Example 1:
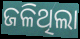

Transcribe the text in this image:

ଜଳିଥିଲା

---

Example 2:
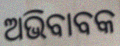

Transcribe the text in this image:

ଅଭିବାବକ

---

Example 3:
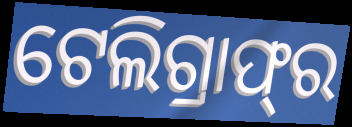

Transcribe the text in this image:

ଟେଲିଗ୍ରାଫ୍‌ର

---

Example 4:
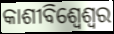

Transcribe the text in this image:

କାଶୀବିଶ୍ୱେଶ୍ୱର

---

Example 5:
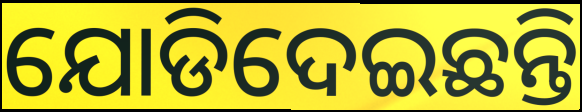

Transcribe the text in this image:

ଯୋଡିଦେଇଛନ୍ତି